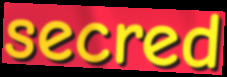
secred